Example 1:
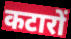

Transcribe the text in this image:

कटारों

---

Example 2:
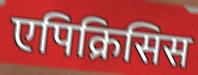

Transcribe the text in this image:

एपिक्रिसिस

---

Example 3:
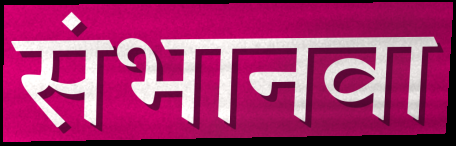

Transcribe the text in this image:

संभानवा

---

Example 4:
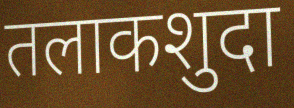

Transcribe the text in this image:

तलाकशुदा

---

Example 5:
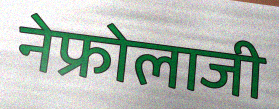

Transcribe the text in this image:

नेफ्रोलाजी